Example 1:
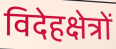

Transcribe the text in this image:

विदेहक्षेत्रों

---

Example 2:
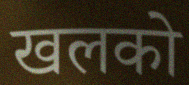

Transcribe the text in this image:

खलको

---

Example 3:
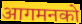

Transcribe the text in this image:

आगमनको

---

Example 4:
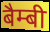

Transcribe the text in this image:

बैम्बी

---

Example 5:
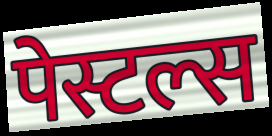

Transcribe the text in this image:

पेस्टल्स